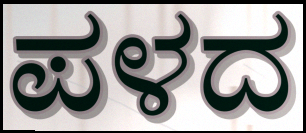
ಪಳದ